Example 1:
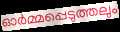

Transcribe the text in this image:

ഓർമ്മപ്പെടുത്തലും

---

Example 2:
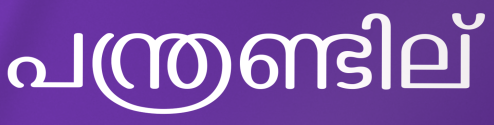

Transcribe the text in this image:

പന്ത്രണ്ടില്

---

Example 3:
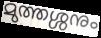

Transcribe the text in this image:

മുത്തശ്ശനും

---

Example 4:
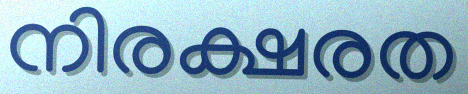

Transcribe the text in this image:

നിരക്ഷരത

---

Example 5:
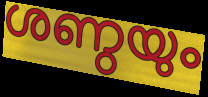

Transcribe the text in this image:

ശണ്ഠയും